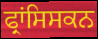
ਫ੍ਰਾਂਸਿਸਕਨ